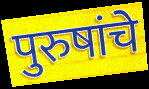
पुरुषांचे